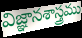
విజ్ఞానశాస్త్రము